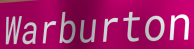
Warburton